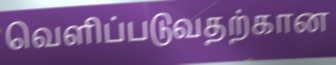
வெளிப்படுவதற்கான